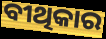
ବୀଥିକାର